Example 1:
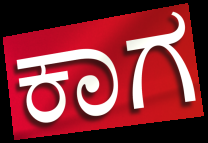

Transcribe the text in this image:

ಕಾಗ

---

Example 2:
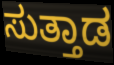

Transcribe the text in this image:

ಸುತ್ತಾಡ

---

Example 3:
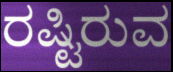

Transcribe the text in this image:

ರಷ್ಟಿರುವ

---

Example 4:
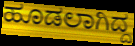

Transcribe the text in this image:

ಹೂಡಲಾಗಿದ್ದ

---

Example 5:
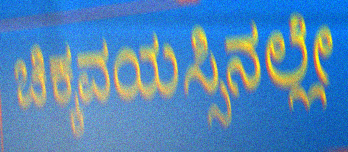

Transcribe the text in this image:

ಚಿಕ್ಕವಯಸ್ಸಿನಲ್ಲೇ